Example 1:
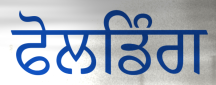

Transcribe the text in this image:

ਫੋਲਡਿੰਗ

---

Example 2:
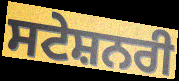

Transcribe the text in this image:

ਸਟੇਸ਼ਨਰੀ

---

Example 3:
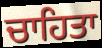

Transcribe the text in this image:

ਚਾਹਿਤਾ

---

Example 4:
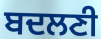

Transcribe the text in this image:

ਬਦਲਣੀ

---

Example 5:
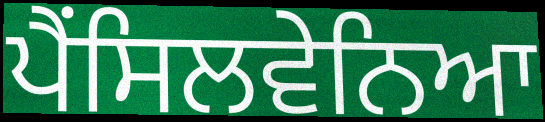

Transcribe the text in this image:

ਪੈਂਸਿਲਵੇਨਿਆ